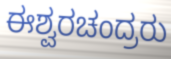
ಈಶ್ವರಚಂದ್ರರು